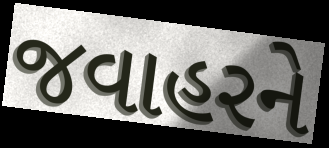
જવાહરને